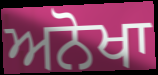
ਅਨੋਖਾ